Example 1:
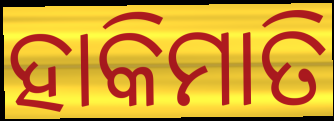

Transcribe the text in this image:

ହାକିମାତି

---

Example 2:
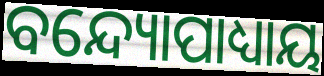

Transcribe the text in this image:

ବନ୍ଦ୍ୟୋପାଧ୍ୟାୟ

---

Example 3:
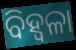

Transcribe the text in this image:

ବିହ୍ଵଳା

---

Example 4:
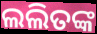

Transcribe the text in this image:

ଲଲିତଙ୍କ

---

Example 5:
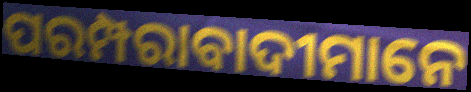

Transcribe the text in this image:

ପରମ୍ପରାବାଦୀମାନେ